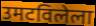
उमटविलेला